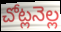
చోట్లనెల్ల